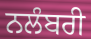
ਨਲੰਬਰੀ